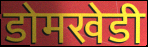
डोमखेडी